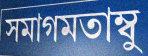
সমাগমতাম্বু